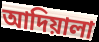
আদিয়ালা